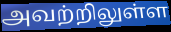
அவற்றிலுள்ள